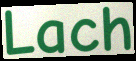
Lach